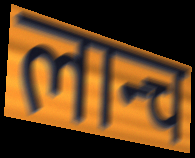
लान्‍च